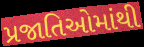
પ્રજાતિઓમાંથી